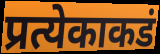
प्रत्येकाकडं